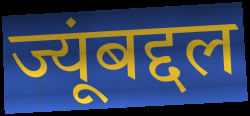
ज्यूंबद्दल